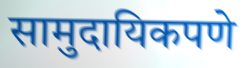
सामुदायिकपणे